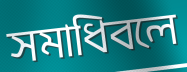
সমাধিবলে